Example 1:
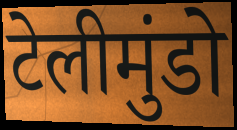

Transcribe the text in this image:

टेलीमुंडो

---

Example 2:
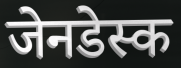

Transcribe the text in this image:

जेनडेस्क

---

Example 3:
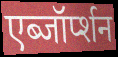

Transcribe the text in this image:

एब्जॉर्प्शन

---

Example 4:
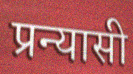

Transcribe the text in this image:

प्रन्यासी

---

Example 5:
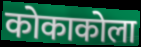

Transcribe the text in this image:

कोकाकोला